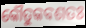
କୌତୁକବଶତଃ